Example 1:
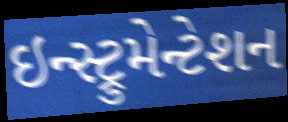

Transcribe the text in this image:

ઇન્સ્ટ્રુમેન્ટેશન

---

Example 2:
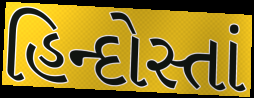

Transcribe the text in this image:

હિન્દોસ્તાં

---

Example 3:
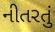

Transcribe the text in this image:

નીતરતું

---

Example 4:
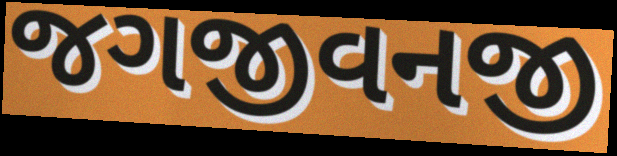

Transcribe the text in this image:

જગજીવનજી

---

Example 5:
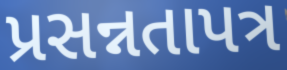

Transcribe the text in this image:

પ્રસન્નતાપત્ર